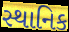
સ્થાનિક